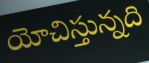
యోచిస్తున్నది